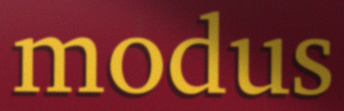
modus